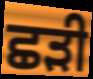
ਛੜੀ